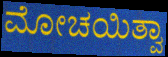
ಮೋಚಯಿತ್ವಾ